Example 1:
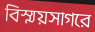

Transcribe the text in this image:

বিস্ময়সাগরে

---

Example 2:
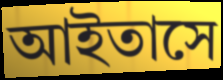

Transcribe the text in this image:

আইতাসে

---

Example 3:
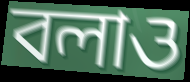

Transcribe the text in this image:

বলাও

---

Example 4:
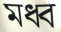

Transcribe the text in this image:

মধ্ব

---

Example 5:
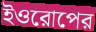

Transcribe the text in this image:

ইওরোপের